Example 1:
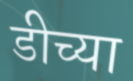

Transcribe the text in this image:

डीच्या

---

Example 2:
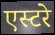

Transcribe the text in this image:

एस्टरे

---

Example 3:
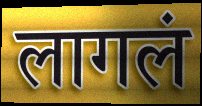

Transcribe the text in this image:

लागलं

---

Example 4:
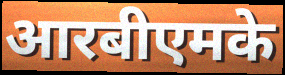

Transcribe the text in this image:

आरबीएमके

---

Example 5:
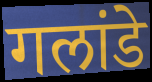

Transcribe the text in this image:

गलांडे